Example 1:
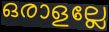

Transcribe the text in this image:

ഒരാളല്ലേ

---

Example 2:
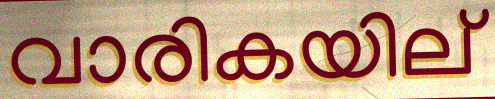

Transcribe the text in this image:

വാരികയില്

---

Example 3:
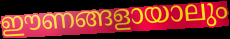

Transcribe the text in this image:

ഈണങ്ങളായാലും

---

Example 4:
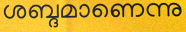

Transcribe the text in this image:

ശബ്ദമാണെന്നു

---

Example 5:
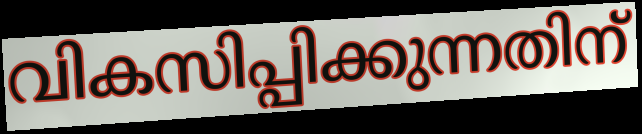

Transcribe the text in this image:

വികസിപ്പിക്കുന്നതിന്